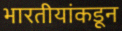
भारतीयांकडून